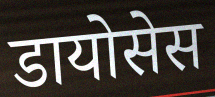
डायोसेस